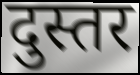
दुस्तर